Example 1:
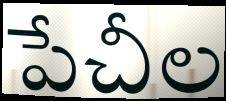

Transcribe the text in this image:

పేచీల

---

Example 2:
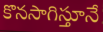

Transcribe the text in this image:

కొనసాగిస్తూనే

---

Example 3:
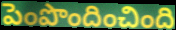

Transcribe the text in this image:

పెంపొందించింది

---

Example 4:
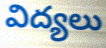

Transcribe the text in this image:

విద్యలు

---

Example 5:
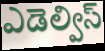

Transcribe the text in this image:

ఎడెల్విస్